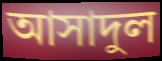
আসাদুল